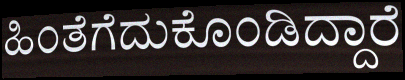
ಹಿಂತೆಗೆದುಕೊಂಡಿದ್ದಾರೆ